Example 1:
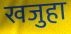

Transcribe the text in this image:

खजुहा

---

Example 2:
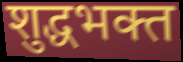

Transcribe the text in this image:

शुद्धभक्त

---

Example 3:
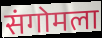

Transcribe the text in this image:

संगोमला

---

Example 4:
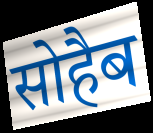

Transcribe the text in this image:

सोहैब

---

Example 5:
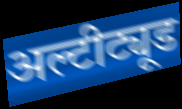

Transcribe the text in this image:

अल्टीट्यूड